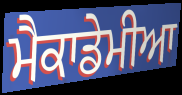
ਮੈਕਾਡੇਮੀਆ